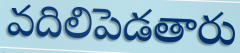
వదిలిపెడతారు